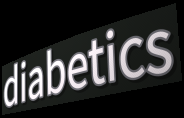
diabetics